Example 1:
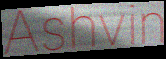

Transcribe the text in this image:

Ashvin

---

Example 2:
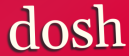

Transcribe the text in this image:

dosh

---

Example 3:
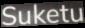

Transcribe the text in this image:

Suketu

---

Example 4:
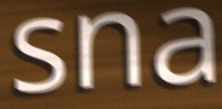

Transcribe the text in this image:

sna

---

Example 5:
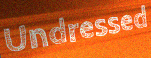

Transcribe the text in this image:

Undressed